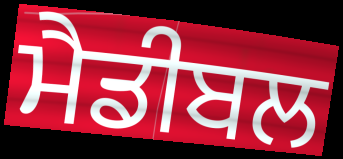
ਮੈਡੀਬਲ